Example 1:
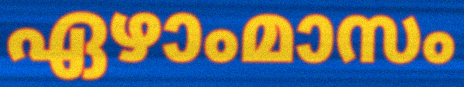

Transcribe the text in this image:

ഏഴാംമാസം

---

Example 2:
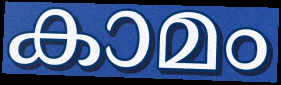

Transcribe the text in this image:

കാമം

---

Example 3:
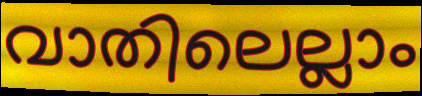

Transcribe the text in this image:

വാതിലെല്ലാം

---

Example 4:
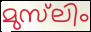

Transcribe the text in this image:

മുസ്‌ലിം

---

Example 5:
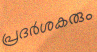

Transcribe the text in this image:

പ്രദർശകരും